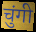
चुंगी